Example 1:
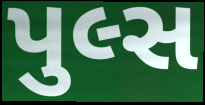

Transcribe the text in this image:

પુલ્સ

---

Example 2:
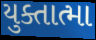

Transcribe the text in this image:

યુક્તાત્મા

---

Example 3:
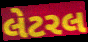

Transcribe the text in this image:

લેટરલ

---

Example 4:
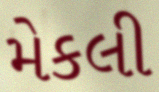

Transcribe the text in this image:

મેકલી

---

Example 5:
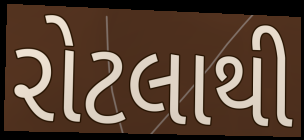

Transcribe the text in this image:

રોટલાથી